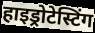
हाइड्रोटेस्टिंग